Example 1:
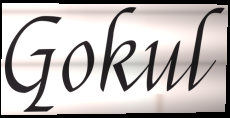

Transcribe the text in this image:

Gokul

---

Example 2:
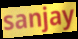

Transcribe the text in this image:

sanjay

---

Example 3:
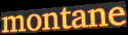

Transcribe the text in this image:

montane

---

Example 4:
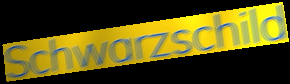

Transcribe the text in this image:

Schwarzschild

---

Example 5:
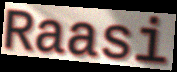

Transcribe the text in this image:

Raasi